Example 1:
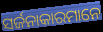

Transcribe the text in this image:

ସର୍ଜନାକାରମାନେ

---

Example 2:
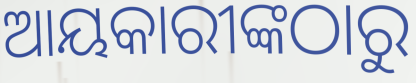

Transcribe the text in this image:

ଆୟକାରୀଙ୍କଠାରୁ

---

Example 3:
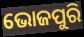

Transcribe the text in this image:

ଭୋଜପୁରି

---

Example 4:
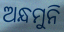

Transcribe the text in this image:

ଅନ୍ଧମୁନି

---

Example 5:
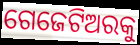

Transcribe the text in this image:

ଗେଜେଟିଅରକୁ